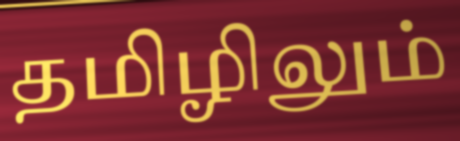
தமிழிலும்